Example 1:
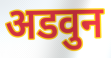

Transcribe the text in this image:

अडवुन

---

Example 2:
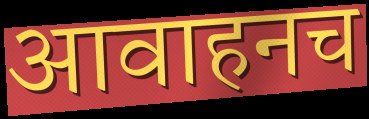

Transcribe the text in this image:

आवाहनच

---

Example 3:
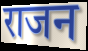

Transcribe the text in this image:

राजन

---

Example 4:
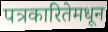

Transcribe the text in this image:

पत्रकारितेमधून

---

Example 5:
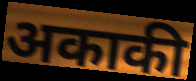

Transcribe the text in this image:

अकाकी